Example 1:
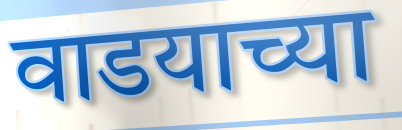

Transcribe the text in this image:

वाडयाच्या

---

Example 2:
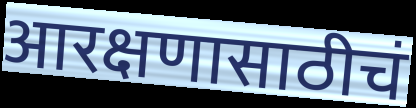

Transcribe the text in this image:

आरक्षणासाठीचं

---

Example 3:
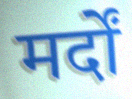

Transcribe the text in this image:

मर्दों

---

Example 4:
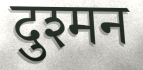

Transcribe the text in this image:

दुश्मन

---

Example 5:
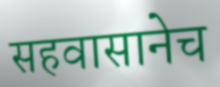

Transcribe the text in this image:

सहवासानेच